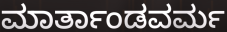
ಮಾರ್ತಾಂಡವರ್ಮ